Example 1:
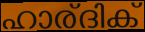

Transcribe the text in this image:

ഹാര്ദിക്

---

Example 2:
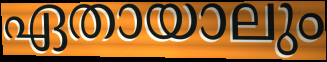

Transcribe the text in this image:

ഏതായാലും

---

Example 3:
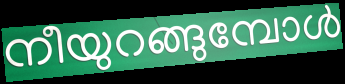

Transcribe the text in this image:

നീയുറങ്ങുമ്പോൾ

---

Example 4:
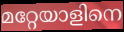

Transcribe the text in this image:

മറ്റേയാളിനെ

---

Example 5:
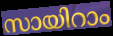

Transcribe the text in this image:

സായിറാം